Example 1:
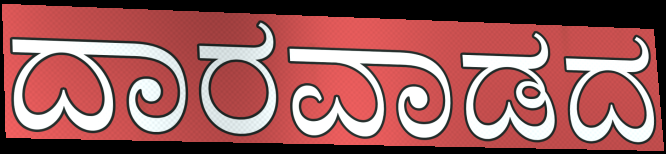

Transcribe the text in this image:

ದಾರವಾಡದ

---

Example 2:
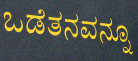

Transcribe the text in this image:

ಒಡೆತನವನ್ನೂ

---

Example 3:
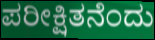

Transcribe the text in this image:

ಪರೀಕ್ಷಿತನೆಂದು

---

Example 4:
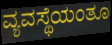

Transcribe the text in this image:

ವ್ಯವಸ್ಥೆಯಂತೂ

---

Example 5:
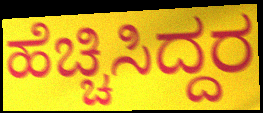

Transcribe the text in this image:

ಹೆಚ್ಚಿಸಿದ್ದರ